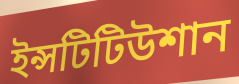
ইন্সটিটিউশান